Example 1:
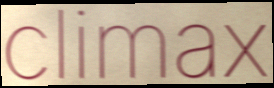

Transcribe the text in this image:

climax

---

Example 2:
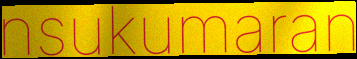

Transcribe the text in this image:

nsukumaran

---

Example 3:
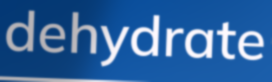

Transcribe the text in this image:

dehydrate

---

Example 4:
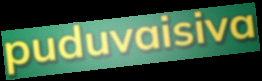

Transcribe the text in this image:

puduvaisiva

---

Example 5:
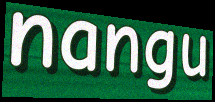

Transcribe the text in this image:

nangu